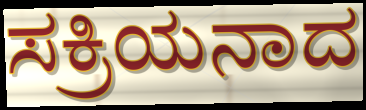
ಸಕ್ರಿಯನಾದ